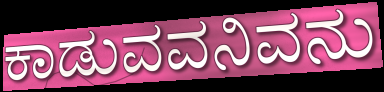
ಕಾಡುವವನಿವನು